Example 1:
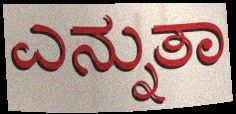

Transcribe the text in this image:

ಎನ್ನುತಾ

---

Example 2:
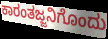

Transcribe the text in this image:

ಕಾರಂತಜ್ಜನಿಗೊಂದು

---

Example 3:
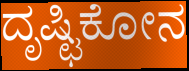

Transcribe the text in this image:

ದೃಷ್ಟಿಕೋನ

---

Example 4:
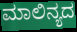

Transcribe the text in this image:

ಮಾಲಿನ್ಯದ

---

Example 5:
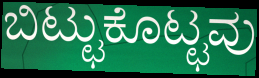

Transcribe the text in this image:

ಬಿಟ್ಟುಕೊಟ್ಟವು